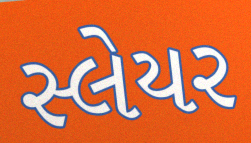
સ્લેયર